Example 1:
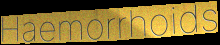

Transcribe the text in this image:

Haemorrhoids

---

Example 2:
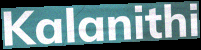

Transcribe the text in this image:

Kalanithi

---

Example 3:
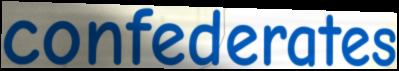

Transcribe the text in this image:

confederates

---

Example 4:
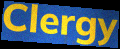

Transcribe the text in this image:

Clergy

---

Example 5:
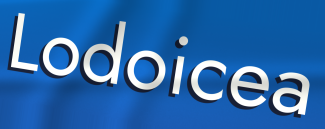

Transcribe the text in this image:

Lodoicea